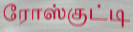
ரோஸ்குட்டி